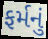
ફર્મનું